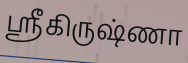
ஸ்ரீகிருஷ்ணா